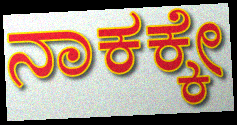
ನಾಕಕ್ಕೇ